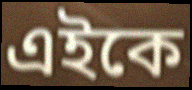
এইকে